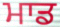
ਮਾਡ